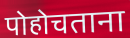
पोहोचताना